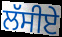
ਲੱਸੀਏ